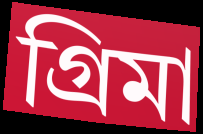
গ্রিমা